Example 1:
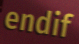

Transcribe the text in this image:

endif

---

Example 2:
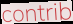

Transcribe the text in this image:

contrib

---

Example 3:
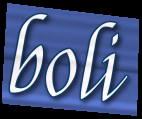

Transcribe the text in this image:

boli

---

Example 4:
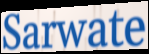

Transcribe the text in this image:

Sarwate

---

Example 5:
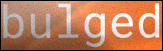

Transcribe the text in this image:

bulged